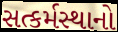
સત્કર્મસ્થાનો